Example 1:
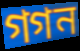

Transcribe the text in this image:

গগন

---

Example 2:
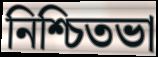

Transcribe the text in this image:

নিশ্চিতভা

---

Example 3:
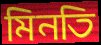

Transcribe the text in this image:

মিনতি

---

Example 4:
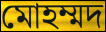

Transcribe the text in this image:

মোহম্মদ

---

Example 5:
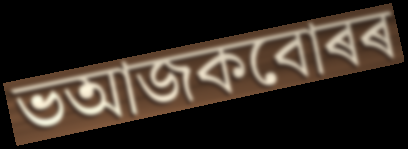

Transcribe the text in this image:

ভআজকবোৰৰ